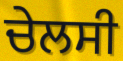
ਚੇਲਸੀ